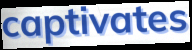
captivates